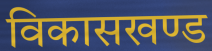
विकासखण्ड